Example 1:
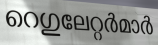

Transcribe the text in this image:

റെഗുലേറ്റർമാർ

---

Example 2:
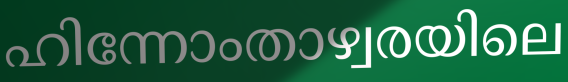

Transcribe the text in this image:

ഹിന്നോംതാഴ്വരയിലെ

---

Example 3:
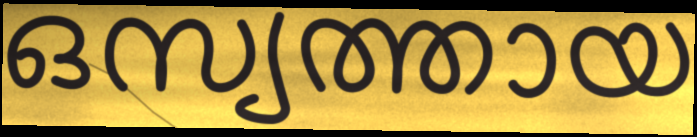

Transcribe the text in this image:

ഒസ്യത്തായ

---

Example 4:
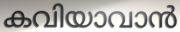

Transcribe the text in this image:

കവിയാവാൻ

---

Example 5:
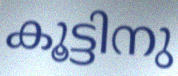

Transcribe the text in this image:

കൂട്ടിനു